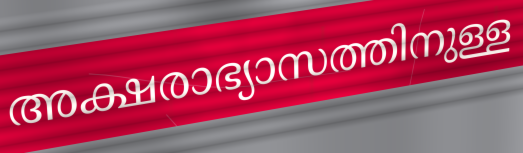
അക്ഷരാഭ്യാസത്തിനുള്ള